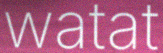
watat